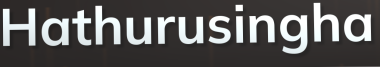
Hathurusingha